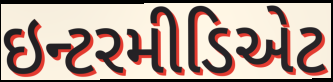
ઇન્ટરમીડિએટ